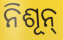
ନିଶୂନ୍